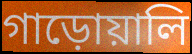
গাড়োয়ালি